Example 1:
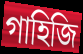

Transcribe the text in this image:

গাহিজি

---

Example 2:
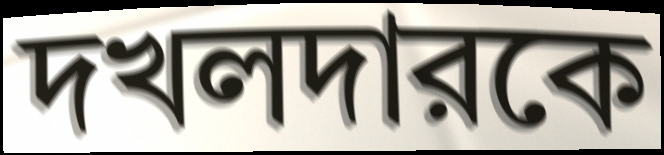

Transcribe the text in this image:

দখলদারকে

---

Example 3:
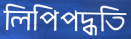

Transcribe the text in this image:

লিপিপদ্ধতি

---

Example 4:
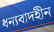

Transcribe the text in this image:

ধন্যবাদহীন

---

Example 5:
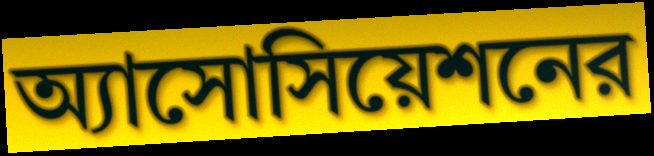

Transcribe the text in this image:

অ্যাসোসিয়েশনের